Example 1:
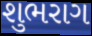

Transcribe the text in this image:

શુભરાગ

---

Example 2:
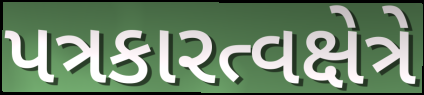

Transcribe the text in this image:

પત્રકારત્વક્ષેત્રે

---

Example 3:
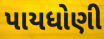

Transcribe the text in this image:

પાયધોણી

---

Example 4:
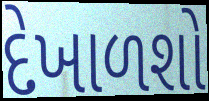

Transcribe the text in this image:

દેખાળશો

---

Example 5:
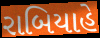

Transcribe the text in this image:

રાબિયાહે